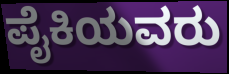
ಪೈಕಿಯವರು